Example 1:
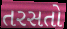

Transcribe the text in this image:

તરસતો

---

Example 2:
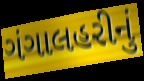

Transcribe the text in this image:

ગંગાલહરીનું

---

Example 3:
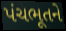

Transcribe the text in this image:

પંચભૂતને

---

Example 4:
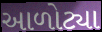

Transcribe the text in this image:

આળોટ્યા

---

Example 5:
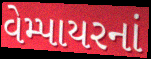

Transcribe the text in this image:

વેમ્પાયરનાં